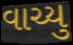
વાચ્યુ